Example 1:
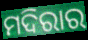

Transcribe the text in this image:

ମଦିରାର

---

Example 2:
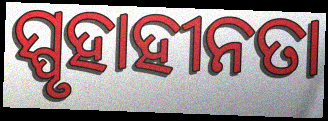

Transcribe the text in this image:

ସ୍ପୃହାହୀନତା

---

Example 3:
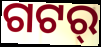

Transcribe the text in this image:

ଗଟର୍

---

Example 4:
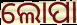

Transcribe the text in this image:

ଲୋପା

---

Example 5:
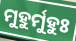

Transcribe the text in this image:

ମୁହୁର୍ମୁହୁଃ